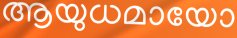
ആയുധമായോ